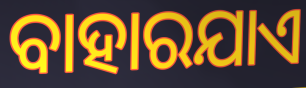
ବାହାରଯାଏ